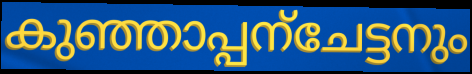
കുഞ്ഞാപ്പന്ചേട്ടനും